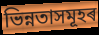
ভিন্নতাসমূহৰ